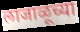
लाजाळूच्या